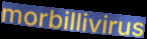
morbillivirus